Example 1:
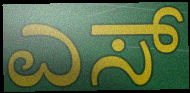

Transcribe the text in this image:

ಎಸ್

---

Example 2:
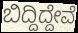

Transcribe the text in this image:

ಬಿದ್ದಿದ್ದೇವೆ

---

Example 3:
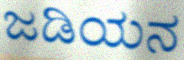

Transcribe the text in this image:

ಜಡಿಯನ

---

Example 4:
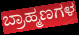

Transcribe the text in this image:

ಬ್ರಾಹ್ಮಣಗಳ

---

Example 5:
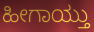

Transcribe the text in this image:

ಹೀಗಾಯ್ತು